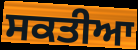
ਸਕਤੀਆ